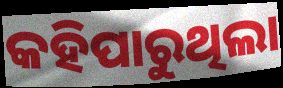
କହିପାରୁଥିଲା